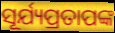
ସୂର୍ଯ୍ୟପ୍ରତାପଙ୍କ